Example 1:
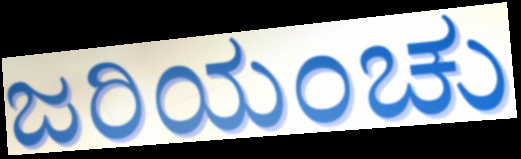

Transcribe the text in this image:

ಜರಿಯಂಚು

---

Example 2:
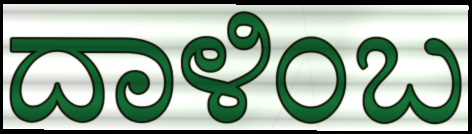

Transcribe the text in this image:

ದಾಳಿಂಬ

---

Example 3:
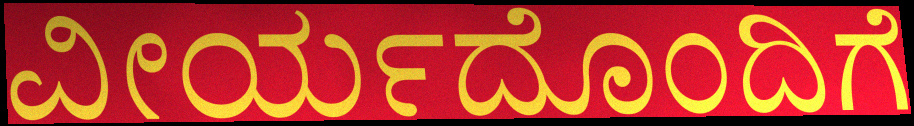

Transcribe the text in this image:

ವೀರ್ಯದೊಂದಿಗೆ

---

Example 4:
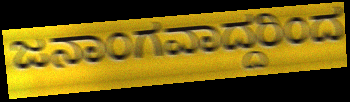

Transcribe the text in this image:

ಜನಾಂಗವಾದ್ದರಿಂದ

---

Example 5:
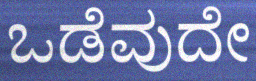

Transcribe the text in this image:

ಒಡೆವುದೇ